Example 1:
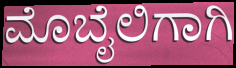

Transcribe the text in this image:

ಮೊಬೈಲಿಗಾಗಿ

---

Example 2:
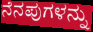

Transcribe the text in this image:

ನೆನಪುಗಳನ್ನು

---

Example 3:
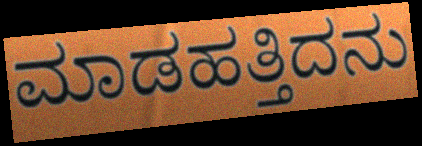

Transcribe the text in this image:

ಮಾಡಹತ್ತಿದನು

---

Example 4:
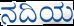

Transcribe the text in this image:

ನದಿಯ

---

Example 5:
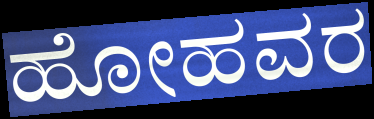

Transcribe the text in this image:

ಹೋಹವರ